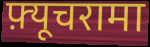
फ़्यूचरामा